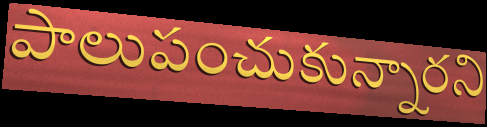
పాలుపంచుకున్నారని